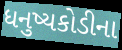
ધનુષ્યકોડીના